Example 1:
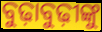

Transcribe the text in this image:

ବୁଢ଼ାବୁଢ଼ୀଙ୍କୁ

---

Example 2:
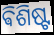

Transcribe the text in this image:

ଵିଶିଷ୍ଟ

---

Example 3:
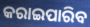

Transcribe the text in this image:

କରାଇପାରିବ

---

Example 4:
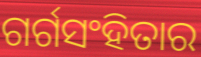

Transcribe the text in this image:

ଗର୍ଗସଂହିତାର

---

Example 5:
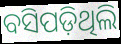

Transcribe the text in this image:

ବସିପଡ଼ିଥିଲି